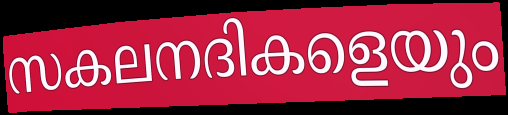
സകലനദികളെയും